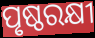
ପୃଷ୍ଠରକ୍ଷୀ